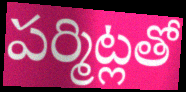
పర్మిట్లతో